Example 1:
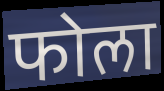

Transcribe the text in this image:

फोला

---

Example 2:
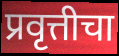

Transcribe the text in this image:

प्रवृत्तीचा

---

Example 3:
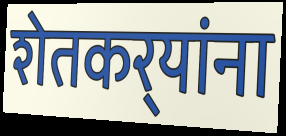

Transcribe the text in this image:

शेतकर्‍यांना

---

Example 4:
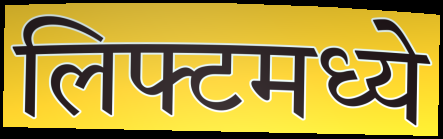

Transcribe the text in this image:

लिफ्टमध्ये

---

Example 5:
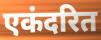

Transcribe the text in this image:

एकंदरित